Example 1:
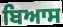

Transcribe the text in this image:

ਬਿਆਸ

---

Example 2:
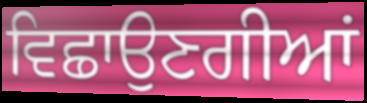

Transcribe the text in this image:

ਵਿਛਾਉਣਗੀਆਂ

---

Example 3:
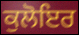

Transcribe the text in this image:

ਕੁਲੋਇਰ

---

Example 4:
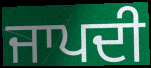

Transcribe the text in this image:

ਜਾਪਦੀ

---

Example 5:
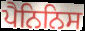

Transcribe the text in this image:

ਪੈਨਿਨਿਸ